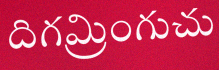
దిగమ్రింగుచు